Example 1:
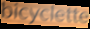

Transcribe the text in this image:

bicyclette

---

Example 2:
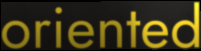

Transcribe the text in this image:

oriented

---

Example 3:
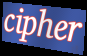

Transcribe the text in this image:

cipher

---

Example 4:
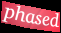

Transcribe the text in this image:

phased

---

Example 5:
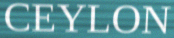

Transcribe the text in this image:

CEYLON